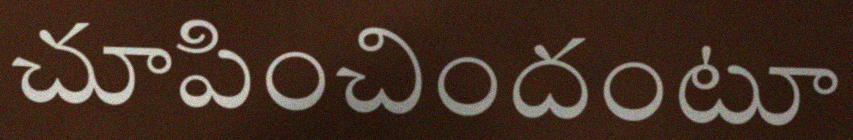
చూపించిందంటూ